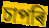
চাপৰি